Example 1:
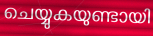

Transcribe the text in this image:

ചെയ്യുകയുണ്ടായി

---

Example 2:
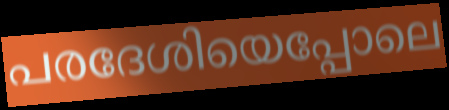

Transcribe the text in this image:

പരദേശിയെപ്പോലെ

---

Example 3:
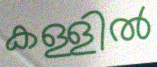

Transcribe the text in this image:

കള്ളിൽ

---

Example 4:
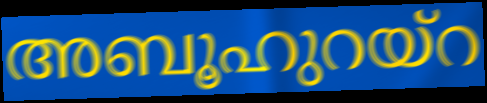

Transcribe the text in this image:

അബൂഹുറയ്റ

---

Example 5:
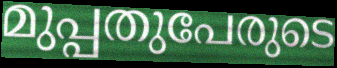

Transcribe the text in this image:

മുപ്പതുപേരുടെ